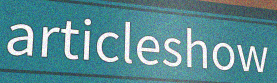
articleshow